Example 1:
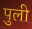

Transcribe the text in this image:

पुली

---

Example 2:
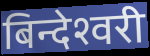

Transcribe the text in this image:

बिन्देश्वरी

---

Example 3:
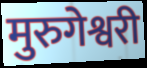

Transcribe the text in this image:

मुरुगेश्वरी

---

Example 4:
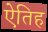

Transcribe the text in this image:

ऐतिह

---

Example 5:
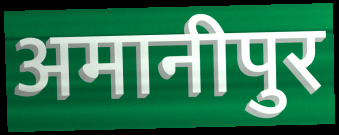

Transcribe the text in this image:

अमानीपुर